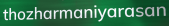
thozharmaniyarasan